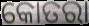
କୋତରା